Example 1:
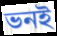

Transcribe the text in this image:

ভনই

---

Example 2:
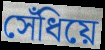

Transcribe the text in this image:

সেঁধিয়ে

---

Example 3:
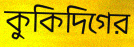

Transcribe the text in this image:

কুকিদিগের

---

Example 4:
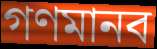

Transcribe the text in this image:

গণমানব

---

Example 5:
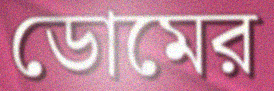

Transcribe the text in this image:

ডোমের